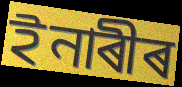
ইনাৰীৰ